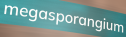
megasporangium